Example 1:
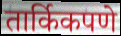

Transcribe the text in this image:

तार्किकपणे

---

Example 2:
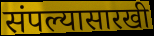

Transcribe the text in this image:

संपल्यासारखी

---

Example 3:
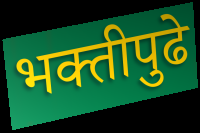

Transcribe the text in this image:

भक्तीपुढे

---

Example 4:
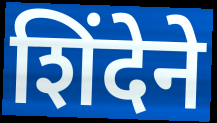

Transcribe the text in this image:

शिंदेने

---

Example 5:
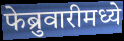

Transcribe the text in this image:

फेब्रुवारीमध्ये